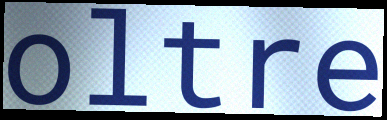
oltre